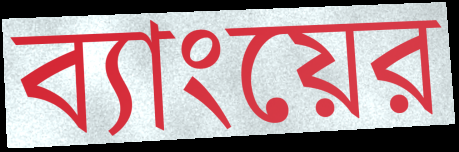
ব্যাংয়ের